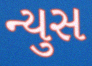
ન્યુસ